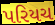
પરિયચ